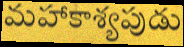
మహాకాశ్యపుడు